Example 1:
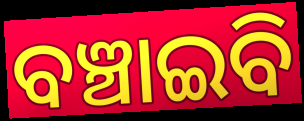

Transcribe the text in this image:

ବଞ୍ଚାଇବି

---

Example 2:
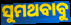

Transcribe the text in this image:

ସୁମଥବାବୁ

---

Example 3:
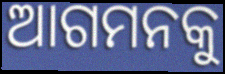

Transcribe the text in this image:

ଆଗମନକୁ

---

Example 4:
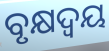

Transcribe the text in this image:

ବୃକ୍ଷଦ୍ୱୟ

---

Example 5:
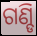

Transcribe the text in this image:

ଗଣ୍ଡି